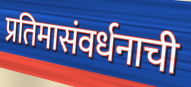
प्रतिमासंवर्धनाची